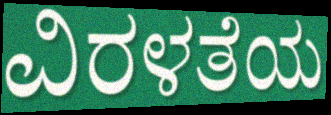
ವಿರಳತೆಯ